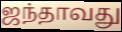
ஜந்தாவது